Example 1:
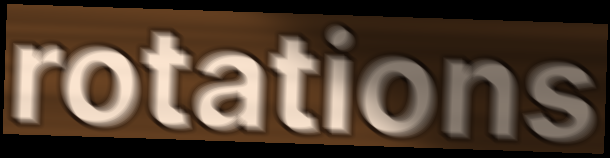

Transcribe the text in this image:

rotations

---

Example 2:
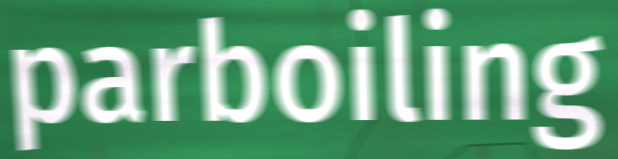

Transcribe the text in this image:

parboiling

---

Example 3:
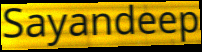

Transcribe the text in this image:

Sayandeep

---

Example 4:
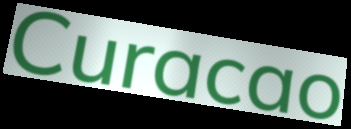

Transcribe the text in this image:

Curacao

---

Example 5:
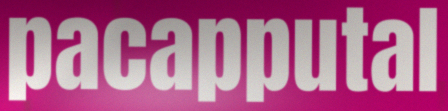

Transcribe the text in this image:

pacapputal